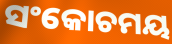
ସଂକୋଚମୟ